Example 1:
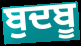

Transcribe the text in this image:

ਬੁਦਬੂ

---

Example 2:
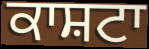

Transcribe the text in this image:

ਕਾਸ਼ਟਾ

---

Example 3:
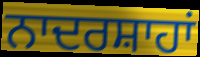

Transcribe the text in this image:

ਨਾਦਰਸ਼ਾਹਾਂ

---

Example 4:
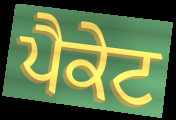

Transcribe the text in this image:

ਪੈਕੇਟ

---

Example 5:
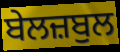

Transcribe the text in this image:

ਬੇਲਜ਼ਬੁਲ